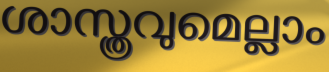
ശാസ്ത്രവുമെല്ലാം